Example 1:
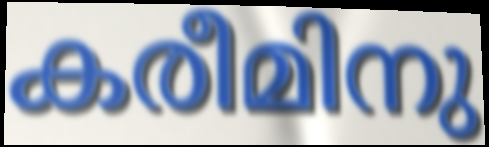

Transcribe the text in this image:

കരീമിനു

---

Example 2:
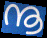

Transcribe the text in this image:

നൂ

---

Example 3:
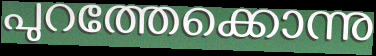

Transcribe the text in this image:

പുറത്തേക്കൊന്നു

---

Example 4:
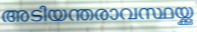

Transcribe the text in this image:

അടിയന്തരാവസ്ഥയ്ക്കു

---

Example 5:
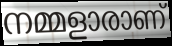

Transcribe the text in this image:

നമ്മളാരാണ്